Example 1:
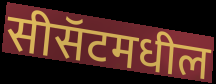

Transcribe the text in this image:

सीसॅटमधील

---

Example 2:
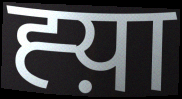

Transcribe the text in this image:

ह्य़ा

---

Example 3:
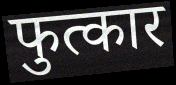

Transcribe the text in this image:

फुत्कार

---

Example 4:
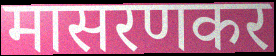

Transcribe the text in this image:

मासरणकर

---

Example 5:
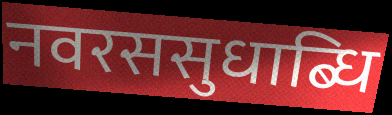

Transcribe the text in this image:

नवरससुधाब्धि